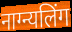
नाग्न्यलिंग